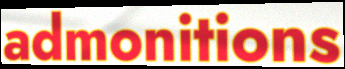
admonitions